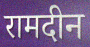
रामदीन